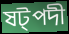
ষট্‌পদী